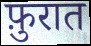
फ़ुरात